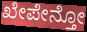
ಖೇಪೇನ್ತೋ